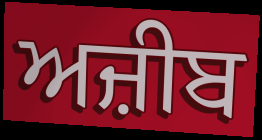
ਅਜ਼ੀਬ